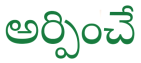
అర్పించే